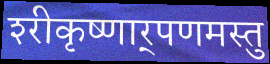
श्रीकृष्णार्पणमस्तु